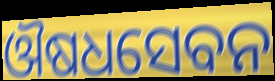
ଔଷଧସେବନ